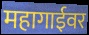
महागाईवर